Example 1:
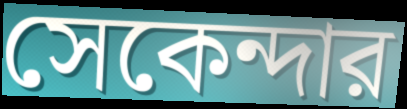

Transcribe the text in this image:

সেকেন্দার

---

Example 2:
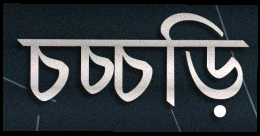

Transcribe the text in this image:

চচ্চড়ি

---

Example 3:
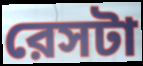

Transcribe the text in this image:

রেসটা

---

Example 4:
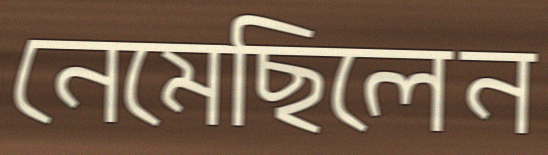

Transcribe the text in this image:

নেমেছিলেন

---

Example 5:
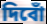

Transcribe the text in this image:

দিবোঁ